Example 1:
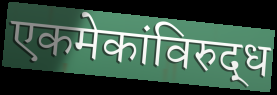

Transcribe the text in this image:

एकमेकांविरुद्ध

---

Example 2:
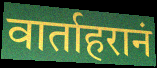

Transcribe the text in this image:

वार्ताहरानं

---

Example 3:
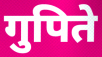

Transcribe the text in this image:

गुपिते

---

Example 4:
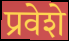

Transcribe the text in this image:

प्रवेशे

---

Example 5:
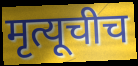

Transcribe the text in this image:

मृत्यूचीच